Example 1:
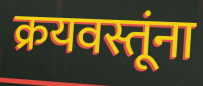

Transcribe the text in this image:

क्रयवस्तूंना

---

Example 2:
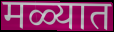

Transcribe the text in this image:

मळ्यात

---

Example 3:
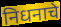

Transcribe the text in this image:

निधनाचे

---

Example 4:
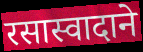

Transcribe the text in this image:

रसास्वादाने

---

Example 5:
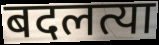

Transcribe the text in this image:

बदलत्या